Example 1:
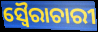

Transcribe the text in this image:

ସ୍ୱୈରାଚାରୀ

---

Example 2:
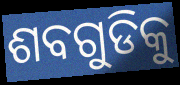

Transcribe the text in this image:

ଶବଗୁଡିକୁ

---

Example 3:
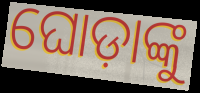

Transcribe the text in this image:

ଘୋଡ଼ାଙ୍କୁ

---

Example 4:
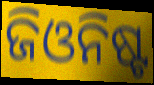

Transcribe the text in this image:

ଜିଓନିଷ୍ଟ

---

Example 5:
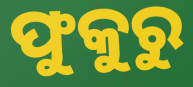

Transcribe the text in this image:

ଫୁକୁରୁ